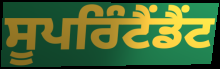
ਸੂਪਰਿੰਟੈਂਡੈਂਟ